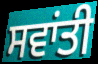
ਸਵਾਂਤੀ